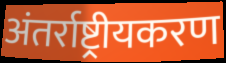
अंतर्राष्ट्रीयकरण